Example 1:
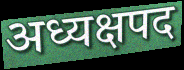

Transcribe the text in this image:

अध्यक्षपद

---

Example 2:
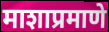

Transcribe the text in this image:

माशाप्रमाणे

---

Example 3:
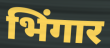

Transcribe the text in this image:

भिंगार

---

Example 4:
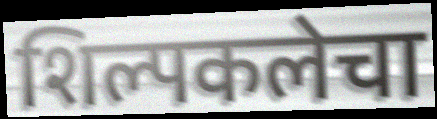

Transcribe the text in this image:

शिल्पकलेचा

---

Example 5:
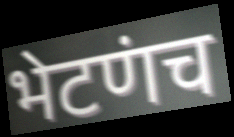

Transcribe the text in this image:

भेटणंच